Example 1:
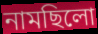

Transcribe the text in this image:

নামছিলো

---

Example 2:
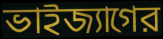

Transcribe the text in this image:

ভাইজ্যাগের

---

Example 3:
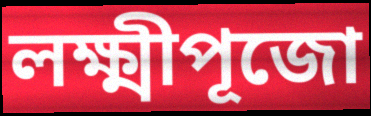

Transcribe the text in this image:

লক্ষ্মীপূজো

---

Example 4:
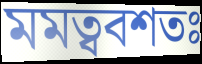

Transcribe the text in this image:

মমত্ববশতঃ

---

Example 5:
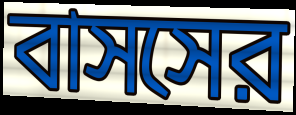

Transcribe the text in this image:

বাসসের